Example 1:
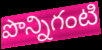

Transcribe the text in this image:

పొన్నిగంటి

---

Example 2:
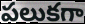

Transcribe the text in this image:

పలుకగా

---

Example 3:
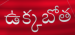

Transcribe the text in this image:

ఉక్కబోత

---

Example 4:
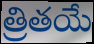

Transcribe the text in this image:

త్రితయే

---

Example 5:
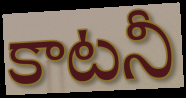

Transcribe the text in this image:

కాటనీ